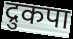
द्रुकपा